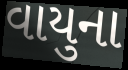
વાયુના